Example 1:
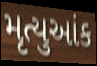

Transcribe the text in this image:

મૃત્યુઆંક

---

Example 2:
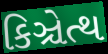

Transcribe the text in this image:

કિઞ્ચેત્થ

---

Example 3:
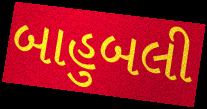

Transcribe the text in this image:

બાહુબલી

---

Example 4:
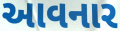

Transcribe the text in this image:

આવનાર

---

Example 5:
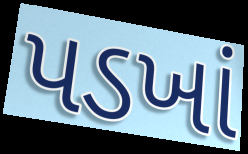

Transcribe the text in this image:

પડખાં